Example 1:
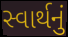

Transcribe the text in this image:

સ્વાર્થનું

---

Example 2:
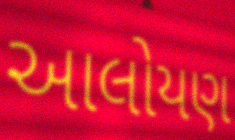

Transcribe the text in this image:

આલોયણ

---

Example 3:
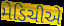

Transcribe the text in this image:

મેડિચીએ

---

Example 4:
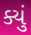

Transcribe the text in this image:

ક્યું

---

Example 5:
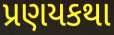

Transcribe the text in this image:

પ્રણયકથા